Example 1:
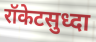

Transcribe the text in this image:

रॉकेटसुध्दा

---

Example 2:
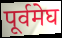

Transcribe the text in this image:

पूर्वमेघ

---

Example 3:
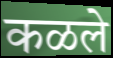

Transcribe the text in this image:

कळले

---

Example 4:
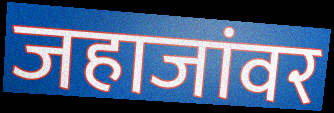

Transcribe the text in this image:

जहाजांवर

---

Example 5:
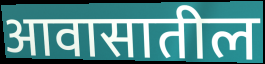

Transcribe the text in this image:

आवासातील